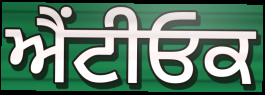
ਐਂਟੀਓਕ